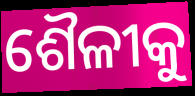
ଶୈଳୀକୁ